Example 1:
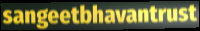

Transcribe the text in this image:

sangeetbhavantrust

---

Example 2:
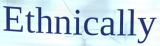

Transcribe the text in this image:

Ethnically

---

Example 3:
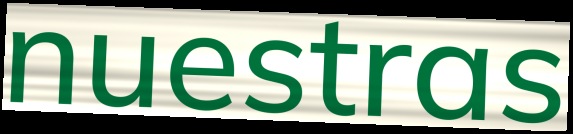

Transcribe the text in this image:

nuestras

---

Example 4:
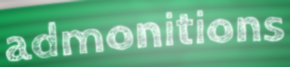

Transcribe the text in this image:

admonitions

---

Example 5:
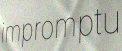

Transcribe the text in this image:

impromptu